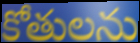
కోతులను